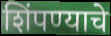
शिंपण्याचे